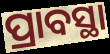
ପ୍ରାବସ୍ଥା